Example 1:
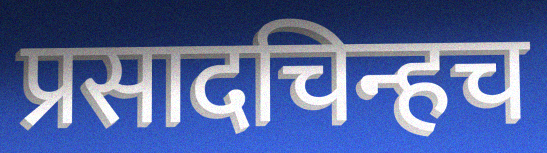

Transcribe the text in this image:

प्रसादचिन्हच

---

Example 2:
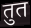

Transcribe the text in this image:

तुत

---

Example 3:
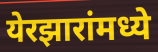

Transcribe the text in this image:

येरझारांमध्ये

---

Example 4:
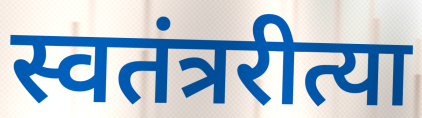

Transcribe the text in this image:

स्वतंत्ररीत्या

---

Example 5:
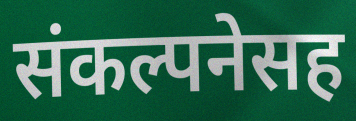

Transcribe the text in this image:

संकल्पनेसह